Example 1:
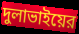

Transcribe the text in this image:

দুলাভাইয়ের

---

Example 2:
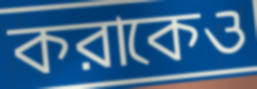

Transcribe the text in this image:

করাকেও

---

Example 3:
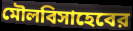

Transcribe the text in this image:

মৌলবিসাহেবের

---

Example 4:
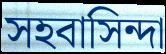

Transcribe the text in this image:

সহবাসিন্দা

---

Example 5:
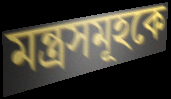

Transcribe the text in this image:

মন্ত্রসমূহকে